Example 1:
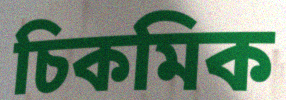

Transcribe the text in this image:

চিকমিক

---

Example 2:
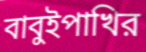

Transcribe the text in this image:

বাবুইপাখির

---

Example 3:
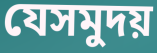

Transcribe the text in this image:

যেসমুদয়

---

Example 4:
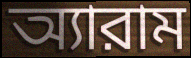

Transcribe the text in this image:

অ্যারাম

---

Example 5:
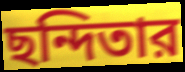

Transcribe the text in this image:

ছন্দিতার